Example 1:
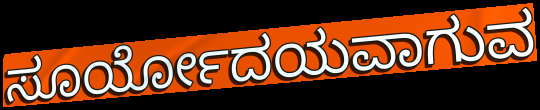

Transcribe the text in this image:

ಸೂರ್ಯೋದಯವಾಗುವ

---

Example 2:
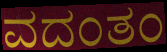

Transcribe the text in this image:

ವದಂತಂ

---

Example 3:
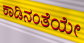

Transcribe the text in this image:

ಕಾಡಿನಂತೆಯೇ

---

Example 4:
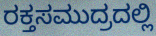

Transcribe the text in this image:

ರಕ್ತಸಮುದ್ರದಲ್ಲಿ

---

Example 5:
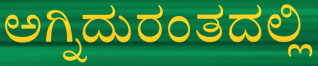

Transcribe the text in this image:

ಅಗ್ನಿದುರಂತದಲ್ಲಿ